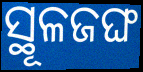
ସ୍ଥୂଳଜଙ୍ଘ